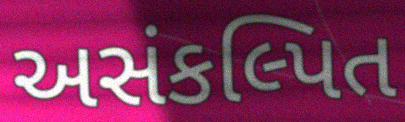
અસંકલ્પિત